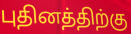
புதினத்திற்கு